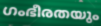
ഗംഭീരതയും